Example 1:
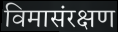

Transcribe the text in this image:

विमासंरक्षण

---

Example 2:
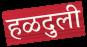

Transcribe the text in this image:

हळदुली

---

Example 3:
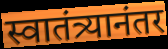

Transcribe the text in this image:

स्वातंत्र्यानंतर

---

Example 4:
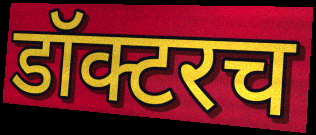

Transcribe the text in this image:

डॉक्टरच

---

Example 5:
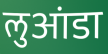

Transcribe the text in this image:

लुआंडा